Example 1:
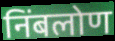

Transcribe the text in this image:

निंबलोण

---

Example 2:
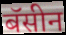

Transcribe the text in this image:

बॅसीन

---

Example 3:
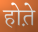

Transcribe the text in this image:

होत़े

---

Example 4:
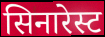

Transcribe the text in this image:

सिनारेस्ट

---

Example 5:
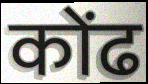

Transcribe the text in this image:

कोंढ